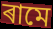
ৰামে